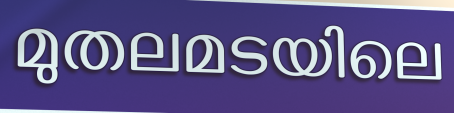
മുതലമടയിലെ